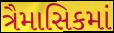
ત્રૈમાસિકમાં